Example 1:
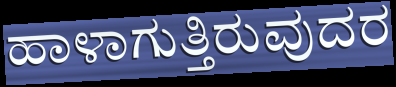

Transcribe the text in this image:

ಹಾಳಾಗುತ್ತಿರುವುದರ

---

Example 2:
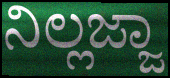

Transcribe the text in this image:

ನಿಲ್ಲಜ್ಜಾ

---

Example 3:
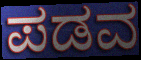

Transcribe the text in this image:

ಪಡವ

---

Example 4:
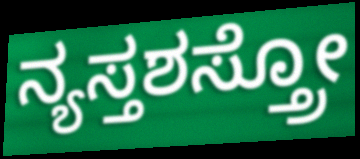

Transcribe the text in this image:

ನ್ಯಸ್ತಶಸ್ತ್ರೋ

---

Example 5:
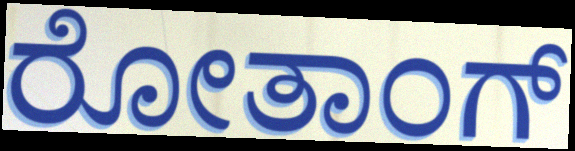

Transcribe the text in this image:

ರೋತಾಂಗ್